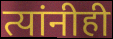
त्यांनीही